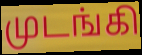
முடங்கி